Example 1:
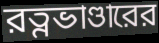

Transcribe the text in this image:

রত্নভাণ্ডারের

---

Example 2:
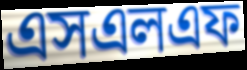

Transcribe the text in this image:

এসএলএফ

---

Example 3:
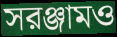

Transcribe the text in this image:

সরঞ্জামও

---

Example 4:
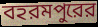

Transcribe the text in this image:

বহরমপুরের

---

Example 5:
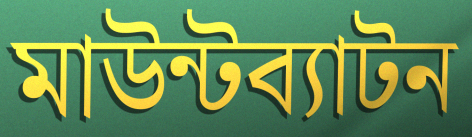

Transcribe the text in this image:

মাউন্টব্যাটন